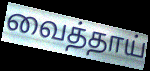
வைத்தாய்